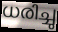
ധരിച്ചു